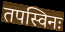
तपस्विनः